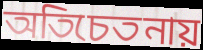
অতিচেতনায়